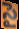
సై